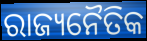
ରାଜ୍ୟନୈତିକ